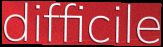
difficile